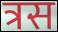
त्रस